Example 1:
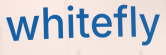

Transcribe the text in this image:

whitefly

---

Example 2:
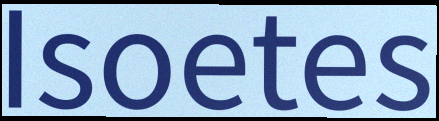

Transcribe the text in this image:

Isoetes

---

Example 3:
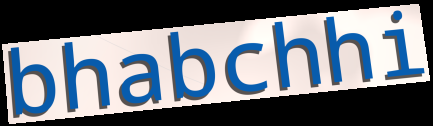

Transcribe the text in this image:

bhabchhi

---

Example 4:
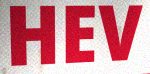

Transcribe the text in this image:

HEV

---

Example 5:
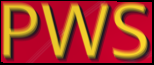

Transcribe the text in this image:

PWS